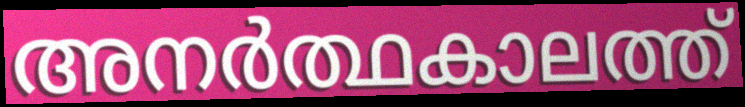
അനർത്ഥകാലത്ത്